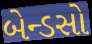
બેન્ડસો